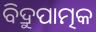
ବିଦ୍ରୁପାତ୍ମକ